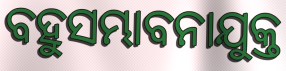
ବହୁସମ୍ଭାବନାଯୁକ୍ତ